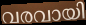
വരവായി